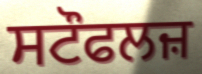
ਸਟੌਫਲਜ਼